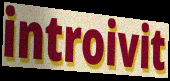
introivit